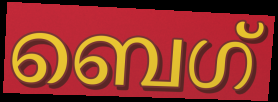
ബെഗ്